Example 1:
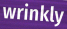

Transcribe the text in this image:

wrinkly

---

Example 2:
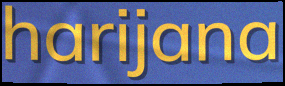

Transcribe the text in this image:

harijana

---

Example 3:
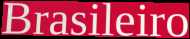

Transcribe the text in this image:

Brasileiro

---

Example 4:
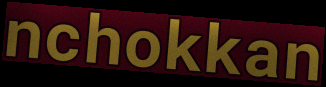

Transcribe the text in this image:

nchokkan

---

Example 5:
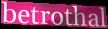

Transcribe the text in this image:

betrothal